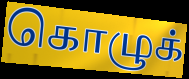
கொழுக்